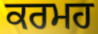
ਕਰਮਹ